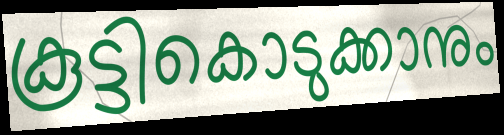
കൂട്ടികൊടുക്കാനും